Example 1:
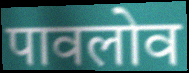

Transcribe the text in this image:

पावलोव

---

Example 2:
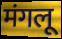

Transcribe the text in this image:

मंगलू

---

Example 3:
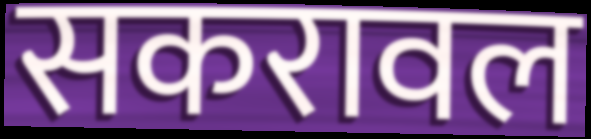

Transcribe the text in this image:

सकरावल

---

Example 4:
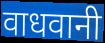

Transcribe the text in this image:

वाधवानी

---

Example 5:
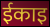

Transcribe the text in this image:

ईकाइ